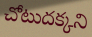
చోటుదక్కని